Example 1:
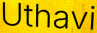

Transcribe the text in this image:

Uthavi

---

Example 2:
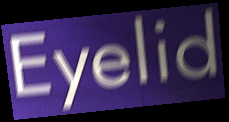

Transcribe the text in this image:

Eyelid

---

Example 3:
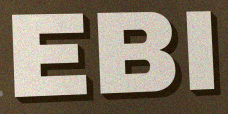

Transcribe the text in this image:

EBI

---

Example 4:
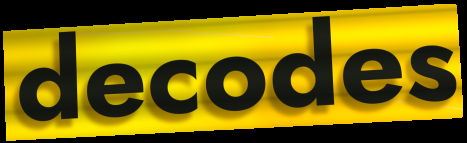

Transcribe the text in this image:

decodes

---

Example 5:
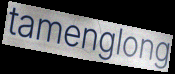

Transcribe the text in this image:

tamenglong